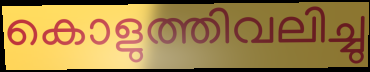
കൊളുത്തിവലിച്ചു